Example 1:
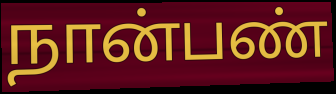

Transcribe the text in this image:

நான்பண்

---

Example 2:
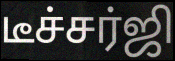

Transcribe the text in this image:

டீச்சர்ஜி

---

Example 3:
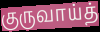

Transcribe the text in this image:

குருவாய்த்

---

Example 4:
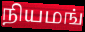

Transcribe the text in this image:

நியமங்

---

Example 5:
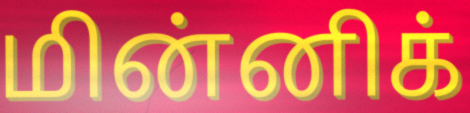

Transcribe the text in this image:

மின்னிக்